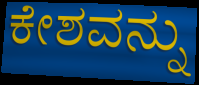
ಕೇಶವನ್ನು